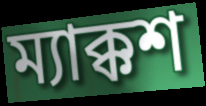
ম্যাক্কশ